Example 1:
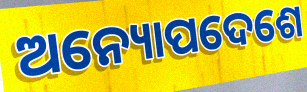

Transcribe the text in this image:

ଅନ୍ୟୋପଦେଶେ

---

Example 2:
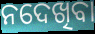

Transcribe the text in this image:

ନଦେଖିବା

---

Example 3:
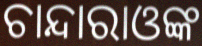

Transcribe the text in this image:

ଚାନ୍ଦାରାଓଙ୍କ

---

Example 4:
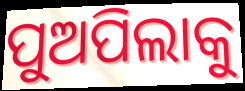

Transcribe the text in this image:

ପୁଅପିଲାକୁ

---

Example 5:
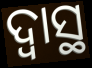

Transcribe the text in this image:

ଦ୍ୱାସ୍ଥ